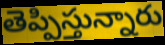
తెప్పిస్తున్నారు